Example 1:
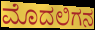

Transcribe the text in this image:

ಮೊದಲಿಗನ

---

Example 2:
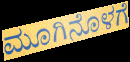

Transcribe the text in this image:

ಮೂಗಿನೊಳಗೆ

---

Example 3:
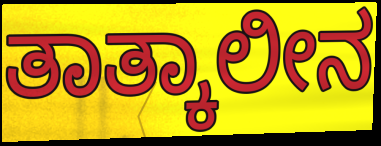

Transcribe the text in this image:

ತಾತ್ಕಾಲೀನ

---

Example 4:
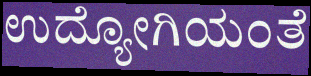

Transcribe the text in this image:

ಉದ್ಯೋಗಿಯಂತೆ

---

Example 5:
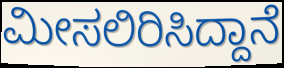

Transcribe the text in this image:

ಮೀಸಲಿರಿಸಿದ್ದಾನೆ